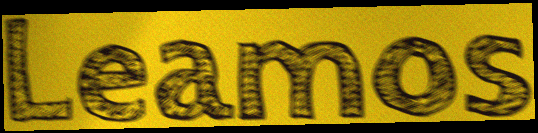
Leamos